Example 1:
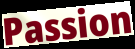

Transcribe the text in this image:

Passion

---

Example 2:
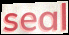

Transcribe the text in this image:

seal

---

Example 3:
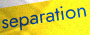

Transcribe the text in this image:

separation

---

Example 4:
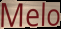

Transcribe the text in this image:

Melo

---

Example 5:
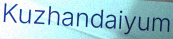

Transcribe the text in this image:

Kuzhandaiyum